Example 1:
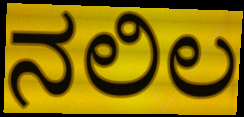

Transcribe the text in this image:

ನಲಿಲ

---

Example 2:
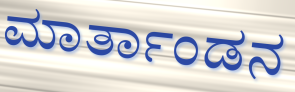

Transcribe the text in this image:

ಮಾರ್ತಾಂಡನ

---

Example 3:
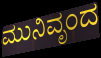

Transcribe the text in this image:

ಮುನಿವೃಂದ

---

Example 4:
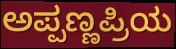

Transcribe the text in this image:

ಅಪ್ಪಣ್ಣಪ್ರಿಯ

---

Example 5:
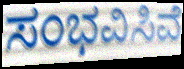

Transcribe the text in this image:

ಸಂಭವಿಸಿವೆ